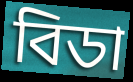
বিডা